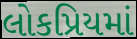
લોકપ્રિયમાં